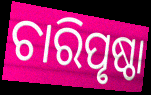
ଚାରିପୃଷ୍ଠା